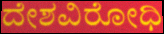
ದೇಶವಿರೋಧಿ